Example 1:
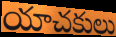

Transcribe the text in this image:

యాచకులు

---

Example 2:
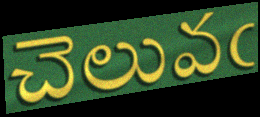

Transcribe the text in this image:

చెలువఁ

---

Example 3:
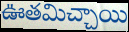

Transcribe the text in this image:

ఊతమిచ్చాయి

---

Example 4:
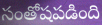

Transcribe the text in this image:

సంతోషపడింది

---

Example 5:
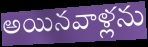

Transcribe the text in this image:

అయినవాళ్లను